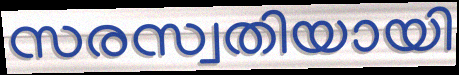
സരസ്വതിയായി